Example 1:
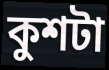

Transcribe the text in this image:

কুশটা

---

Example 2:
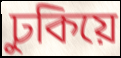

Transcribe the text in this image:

ঢুকিয়ে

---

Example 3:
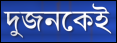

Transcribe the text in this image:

দুজনকেই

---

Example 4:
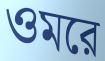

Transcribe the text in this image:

ওমরে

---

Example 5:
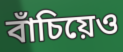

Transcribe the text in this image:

বাঁচিয়েও